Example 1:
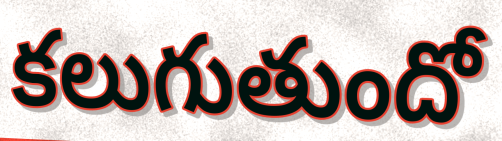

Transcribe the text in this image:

కలుగుతుందో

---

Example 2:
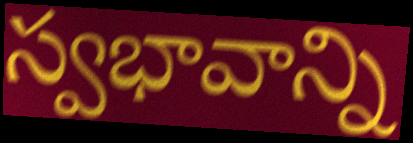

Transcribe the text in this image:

స్వభావాన్ని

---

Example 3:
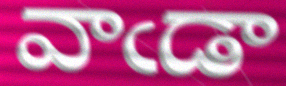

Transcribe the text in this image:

వాఁడా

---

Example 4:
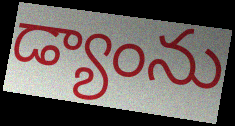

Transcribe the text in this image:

డ్యాంను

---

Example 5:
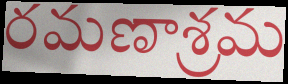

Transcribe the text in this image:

రమణాశ్రమ